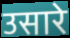
उसारे